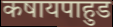
कषायपाहुड